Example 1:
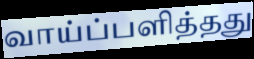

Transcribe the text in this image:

வாய்ப்பளித்தது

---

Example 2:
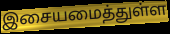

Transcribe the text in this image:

இசையமைத்துள்ள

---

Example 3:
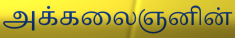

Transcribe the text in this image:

அக்கலைஞனின்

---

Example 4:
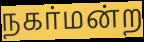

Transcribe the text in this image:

நகர்மன்ற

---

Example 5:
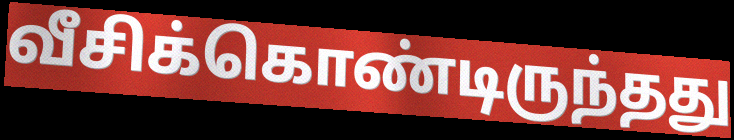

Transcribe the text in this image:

வீசிக்கொண்டிருந்தது